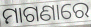
ମାଗଣାରେ